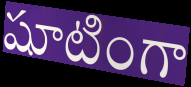
షూటింగా